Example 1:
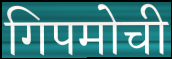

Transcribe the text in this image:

गिपमोची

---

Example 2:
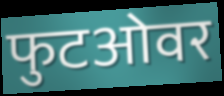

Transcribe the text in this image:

फुटओवर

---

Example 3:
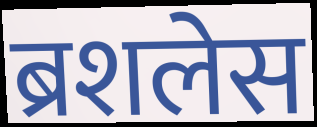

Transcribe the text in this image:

ब्रशलेस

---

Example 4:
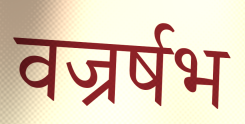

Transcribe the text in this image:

वज्रर्षभ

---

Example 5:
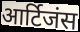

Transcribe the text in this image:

आर्टिजंस